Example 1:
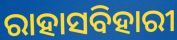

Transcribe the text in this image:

ରାହାସବିହାରୀ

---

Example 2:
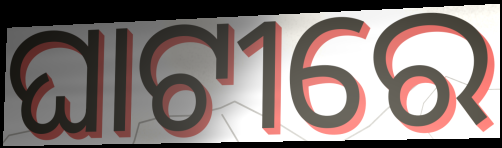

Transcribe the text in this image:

ଘାଟୀରେ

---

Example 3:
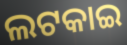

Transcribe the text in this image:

ଲଟକାଇ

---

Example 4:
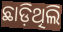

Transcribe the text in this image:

ଛାଡ଼ିଥିଲି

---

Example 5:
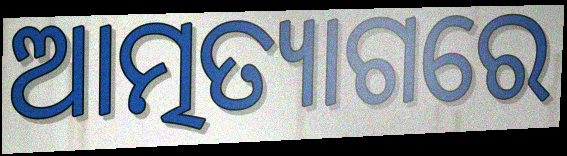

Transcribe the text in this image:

ଆତ୍ମତ୍ୟାଗରେ